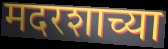
मदरशाच्या